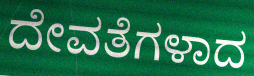
ದೇವತೆಗಳಾದ